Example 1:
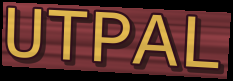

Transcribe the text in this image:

UTPAL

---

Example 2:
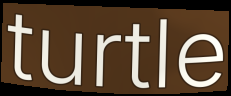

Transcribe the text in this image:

turtle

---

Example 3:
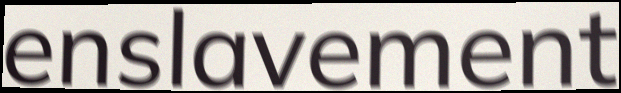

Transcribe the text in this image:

enslavement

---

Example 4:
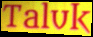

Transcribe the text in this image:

Taluk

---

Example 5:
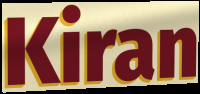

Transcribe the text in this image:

Kiran